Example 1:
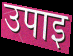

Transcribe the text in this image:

उपाइ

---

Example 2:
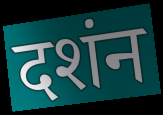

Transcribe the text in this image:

दशंन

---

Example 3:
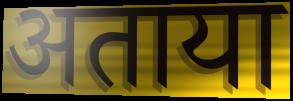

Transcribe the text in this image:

अताया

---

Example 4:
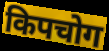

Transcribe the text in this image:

किपचोग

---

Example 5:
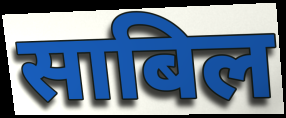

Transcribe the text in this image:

साबिल